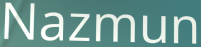
Nazmun